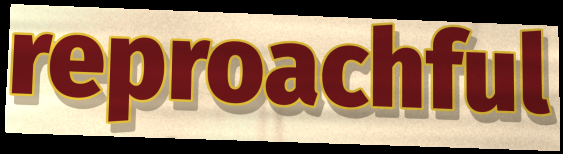
reproachful